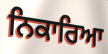
ਨਿਕਾਰਿਆ